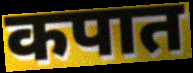
कपात